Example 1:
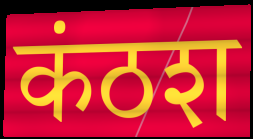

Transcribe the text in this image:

कंठश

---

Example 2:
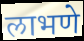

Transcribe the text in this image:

लाभणे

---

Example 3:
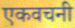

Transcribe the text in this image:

एकवचनी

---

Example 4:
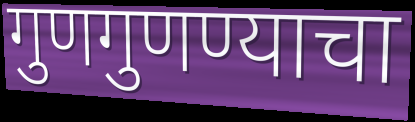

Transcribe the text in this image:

गुणगुणण्याचा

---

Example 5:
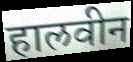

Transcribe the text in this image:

हालवीन